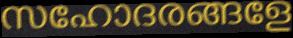
സഹോദരങ്ങളേ